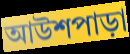
আউশপাড়া